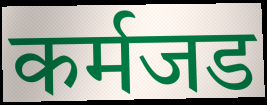
कर्मजड